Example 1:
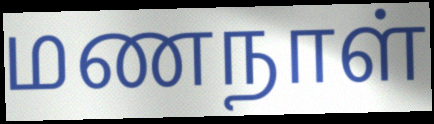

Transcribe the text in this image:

மணநாள்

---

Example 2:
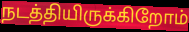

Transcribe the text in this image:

நடத்தியிருக்கிறோம்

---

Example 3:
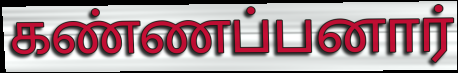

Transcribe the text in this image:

கண்ணப்பனார்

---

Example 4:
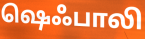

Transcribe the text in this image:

ஷெஃபாலி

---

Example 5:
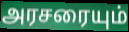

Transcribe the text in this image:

அரசரையும்